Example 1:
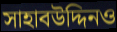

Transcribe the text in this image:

সাহাবউদ্দিনও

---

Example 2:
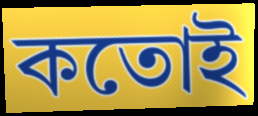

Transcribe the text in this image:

কতোই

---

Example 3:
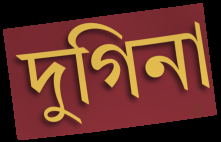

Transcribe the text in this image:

দুগিনা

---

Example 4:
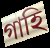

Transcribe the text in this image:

গাহি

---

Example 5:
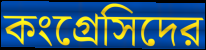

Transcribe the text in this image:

কংগ্রেসিদের